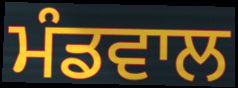
ਮੰਡਵਾਲ